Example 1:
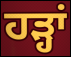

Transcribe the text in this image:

ਹੜ੍ਹਾਂ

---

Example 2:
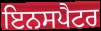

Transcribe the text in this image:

ਇਨਸਪੈਟਰ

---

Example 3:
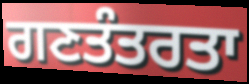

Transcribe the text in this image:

ਗਣਤੰਤਰਤਾ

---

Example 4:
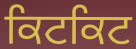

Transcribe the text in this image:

ਕਿਟਕਿਟ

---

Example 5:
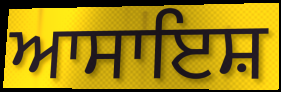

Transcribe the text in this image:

ਆਸਾਇਸ਼